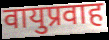
वायुप्रवाह